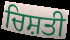
ਚਿਸ਼ਤੀ